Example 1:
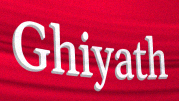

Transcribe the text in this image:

Ghiyath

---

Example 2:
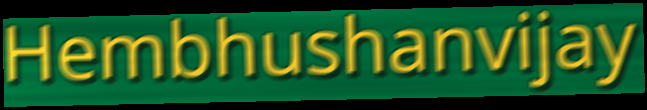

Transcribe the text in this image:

Hembhushanvijay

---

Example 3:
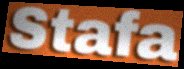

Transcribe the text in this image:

Stafa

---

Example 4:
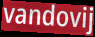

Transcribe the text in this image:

vandovij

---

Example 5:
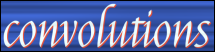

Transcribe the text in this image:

convolutions